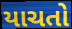
યાચતો